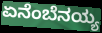
ಏನೆಂಬೆನಯ್ಯ